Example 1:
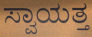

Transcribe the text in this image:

ಸ್ವಾಯತ್ತ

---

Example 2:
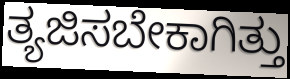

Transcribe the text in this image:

ತ್ಯಜಿಸಬೇಕಾಗಿತ್ತು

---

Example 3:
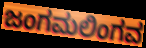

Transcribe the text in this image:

ಜಂಗಮಲಿಂಗವ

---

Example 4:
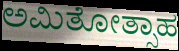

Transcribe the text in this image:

ಅಮಿತೋತ್ಸಾಹ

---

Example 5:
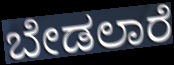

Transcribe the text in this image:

ಬೇಡಲಾರೆ